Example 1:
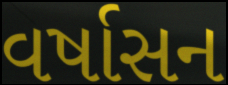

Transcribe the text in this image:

વર્ષાસન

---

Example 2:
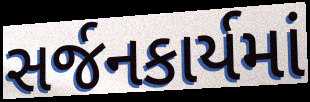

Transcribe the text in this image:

સર્જનકાર્યમાં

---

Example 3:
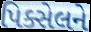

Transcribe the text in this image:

પિક્સેલને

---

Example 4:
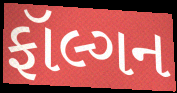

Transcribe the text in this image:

ફૉલ્ગન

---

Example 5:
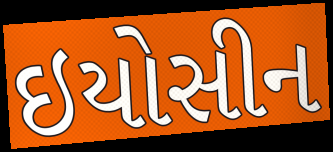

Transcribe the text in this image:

ઇયોસીન